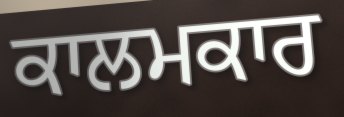
ਕਾਲਮਕਾਰ